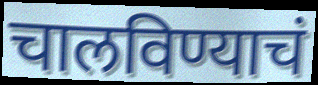
चालविण्याचं